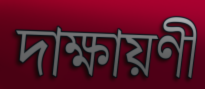
দাক্ষায়ণী